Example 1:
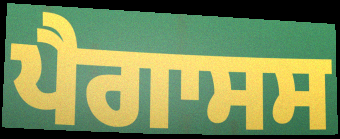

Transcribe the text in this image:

ਪੈਗਾਸਸ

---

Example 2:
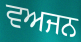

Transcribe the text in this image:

ਵਅਜਨ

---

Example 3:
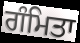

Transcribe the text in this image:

ਗੰਮਿਤਾ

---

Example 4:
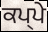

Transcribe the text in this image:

ਕਪ੍ਪੇ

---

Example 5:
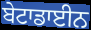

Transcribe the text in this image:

ਬੇਟਾਡਾਈਨ